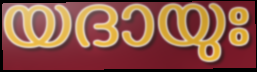
യദായുഃ